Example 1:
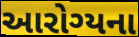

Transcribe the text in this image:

આરોગ્યના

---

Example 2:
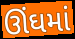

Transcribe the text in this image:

ઊંઘમાં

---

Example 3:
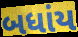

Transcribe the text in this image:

બધાંય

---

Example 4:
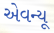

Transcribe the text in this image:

એવન્યૂ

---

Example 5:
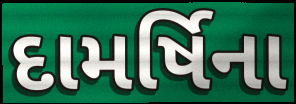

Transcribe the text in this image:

દામર્ષિના